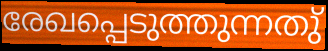
രേഖപ്പെടുത്തുന്നതു്